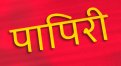
पापिरी